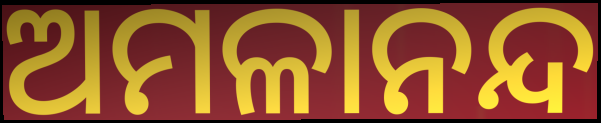
ଅମଳାନନ୍ଦ